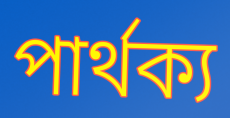
পার্থক্য